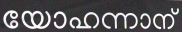
യോഹന്നാന്